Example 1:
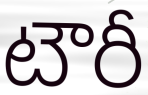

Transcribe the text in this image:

టౌరీ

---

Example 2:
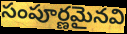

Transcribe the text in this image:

సంపూర్ణమైనవి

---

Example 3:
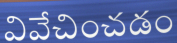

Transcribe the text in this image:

వివేచించడం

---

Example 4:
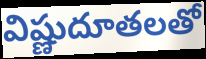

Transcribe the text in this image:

విష్ణుదూతలతో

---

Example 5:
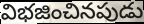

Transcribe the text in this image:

విభజించినపుడు